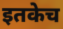
इतकेच